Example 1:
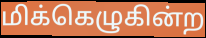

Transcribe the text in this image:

மிக்கெழுகின்ற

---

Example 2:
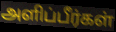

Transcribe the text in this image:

அளிப்பீர்கள்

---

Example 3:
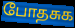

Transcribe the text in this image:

போதசுக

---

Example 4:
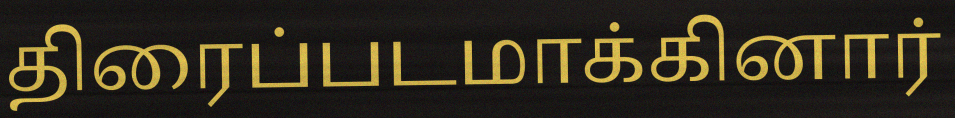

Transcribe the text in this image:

திரைப்படமாக்கினார்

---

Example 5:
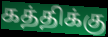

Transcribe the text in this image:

கத்திக்கு